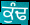
ਕੁੰਢ